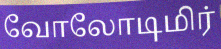
வோலோடிமிர்